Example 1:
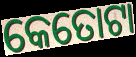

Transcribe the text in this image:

କେତୋଟା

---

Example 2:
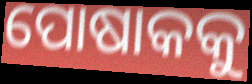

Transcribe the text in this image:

ପୋଷାକକୁ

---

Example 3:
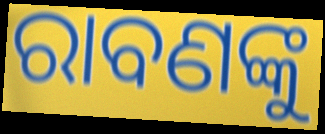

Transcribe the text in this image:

ରାବଣଙ୍କୁ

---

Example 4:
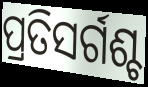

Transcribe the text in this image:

ପ୍ରତିସର୍ଗଶ୍ଚ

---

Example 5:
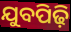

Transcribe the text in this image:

ଯୁବପିଢ଼ି